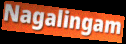
Nagalingam